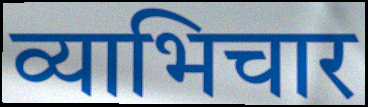
व्याभिचार